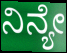
ನಿನ್ಯೇ